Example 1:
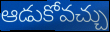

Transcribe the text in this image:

ఆడుకోవచ్చు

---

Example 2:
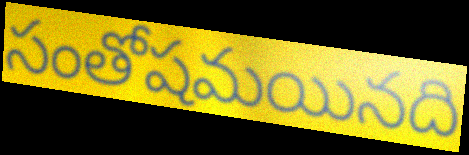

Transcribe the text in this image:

సంతోషమయినది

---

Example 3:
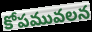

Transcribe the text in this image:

కోపమువలన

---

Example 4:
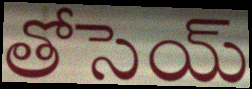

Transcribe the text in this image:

తోసెయ్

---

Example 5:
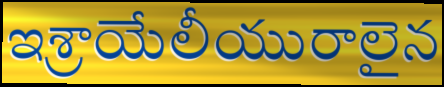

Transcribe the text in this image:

ఇశ్రాయేలీయురాలైన